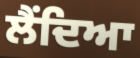
ਲੈਂਦਿਆ